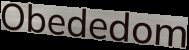
Obededom